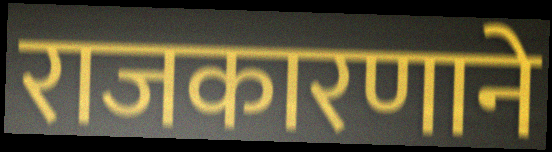
राजकारणाने